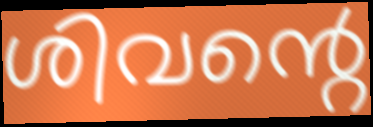
ശിവന്റെ